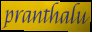
pranthalu